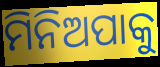
ମିନିଅପାକୁ